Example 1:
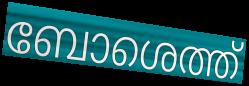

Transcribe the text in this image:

ബോശെത്ത്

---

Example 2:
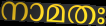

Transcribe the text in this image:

നാമതഃ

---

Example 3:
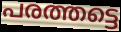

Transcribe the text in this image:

പരത്തട്ടെ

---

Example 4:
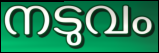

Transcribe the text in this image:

നടുവം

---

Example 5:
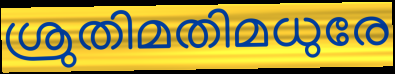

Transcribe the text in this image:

ശ്രുതിമതിമധുരേ